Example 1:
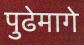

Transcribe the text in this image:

पुढेमागे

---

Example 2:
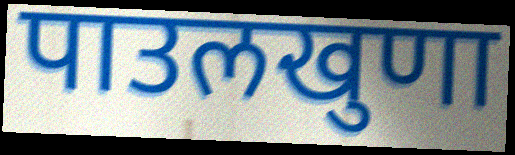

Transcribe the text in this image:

पाउलखुणा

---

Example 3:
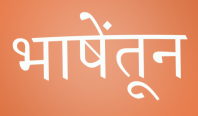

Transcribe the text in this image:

भाषेंतून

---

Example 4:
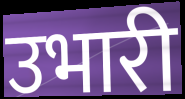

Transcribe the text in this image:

उभारी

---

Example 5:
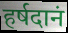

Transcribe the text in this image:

हर्षदानं